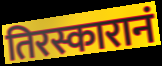
तिरस्कारानं